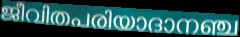
ജീവിതപരിയാദാനഞ്ച